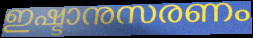
ഇഷ്ടാനുസരണം